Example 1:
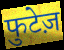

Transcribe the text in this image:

फुटेज़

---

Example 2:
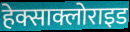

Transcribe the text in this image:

हेक्साक्लोराइड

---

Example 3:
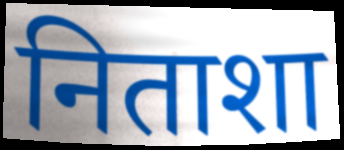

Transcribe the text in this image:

निताशा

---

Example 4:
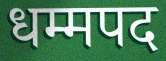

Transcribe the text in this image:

धम्मपद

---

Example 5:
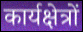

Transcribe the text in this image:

कार्यक्षेत्रों